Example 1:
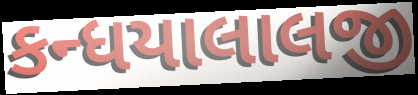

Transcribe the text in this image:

કન્ધયાલાલજી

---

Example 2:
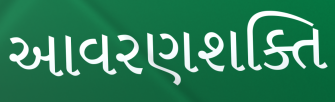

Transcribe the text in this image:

આવરણશક્તિ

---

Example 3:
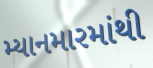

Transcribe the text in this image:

મ્યાનમારમાંથી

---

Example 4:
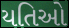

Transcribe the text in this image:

યતિઓ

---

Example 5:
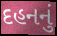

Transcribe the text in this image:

દહનનું